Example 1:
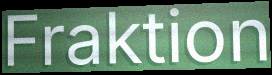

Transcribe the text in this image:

Fraktion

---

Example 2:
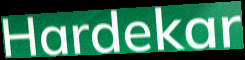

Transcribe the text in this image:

Hardekar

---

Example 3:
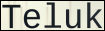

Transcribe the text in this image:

Teluk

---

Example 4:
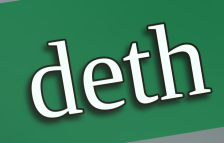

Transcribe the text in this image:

deth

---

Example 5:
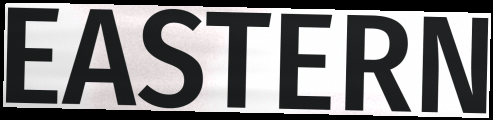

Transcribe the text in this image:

EASTERN